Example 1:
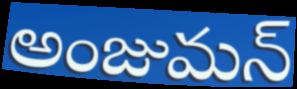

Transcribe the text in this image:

అంజుమన్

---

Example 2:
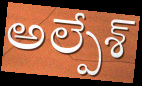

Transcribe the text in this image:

అల్పేశ్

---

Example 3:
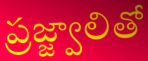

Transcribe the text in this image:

ప్రజ్జ్వాలితో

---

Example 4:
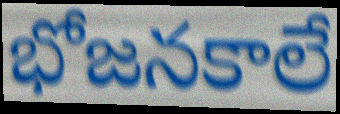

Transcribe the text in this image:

భోజనకాలే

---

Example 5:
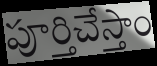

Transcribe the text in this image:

పూర్తిచేస్తాం